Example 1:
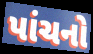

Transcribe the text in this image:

પાંચનો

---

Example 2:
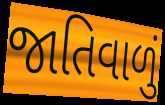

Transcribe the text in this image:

જાતિવાળું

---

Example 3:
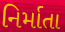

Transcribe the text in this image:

નિર્માતા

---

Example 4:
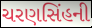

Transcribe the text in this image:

ચરણસિંહની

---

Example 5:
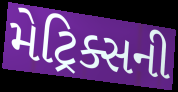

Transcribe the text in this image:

મેટ્રિક્સની